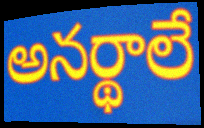
అనర్థాలే